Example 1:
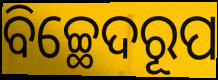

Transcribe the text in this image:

ବିଚ୍ଛେଦରୂପ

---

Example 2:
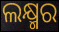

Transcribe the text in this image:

ଲକ୍ଷ୍ମର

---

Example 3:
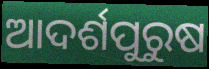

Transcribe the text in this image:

ଆଦର୍ଶପୁରୁଷ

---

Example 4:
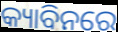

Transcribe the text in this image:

କ୍ୟାବିନରେ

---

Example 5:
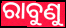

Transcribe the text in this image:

ରାବୁଣୁ